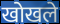
खोखले